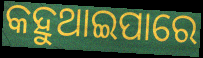
କହୁଥାଇପାରେ